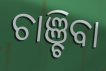
ଚାଞ୍ଚିବା